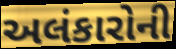
અલંકારોની